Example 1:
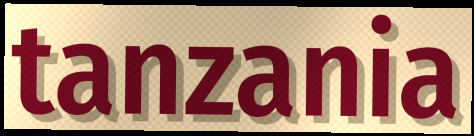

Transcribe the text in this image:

tanzania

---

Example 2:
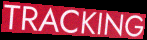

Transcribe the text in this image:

TRACKING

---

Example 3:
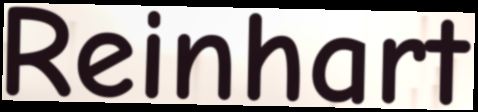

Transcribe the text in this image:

Reinhart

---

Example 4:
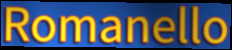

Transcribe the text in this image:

Romanello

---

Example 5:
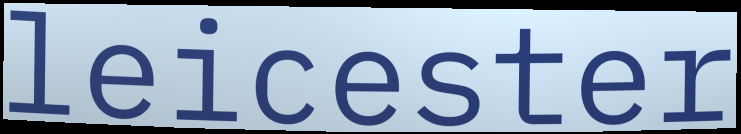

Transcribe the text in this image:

leicester